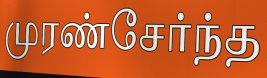
முரண்சேர்ந்த